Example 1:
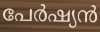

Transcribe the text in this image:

പേർഷ്യൻ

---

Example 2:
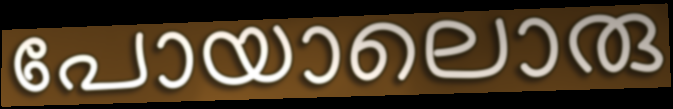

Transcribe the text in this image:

പോയാലൊരു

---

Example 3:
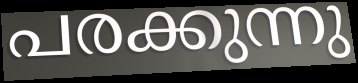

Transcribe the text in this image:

പരക്കുന്നു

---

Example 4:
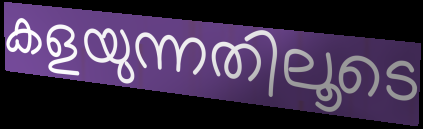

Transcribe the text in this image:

കളയുന്നതിലൂടെ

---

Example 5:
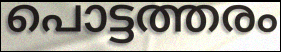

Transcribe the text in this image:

പൊട്ടത്തരം